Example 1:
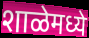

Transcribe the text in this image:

शाळेमध्ये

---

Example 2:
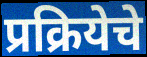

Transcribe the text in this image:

प्रक्रियेचे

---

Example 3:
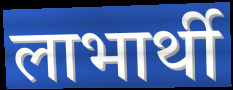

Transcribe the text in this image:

लाभार्थी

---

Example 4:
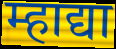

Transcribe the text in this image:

म्हाद्या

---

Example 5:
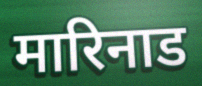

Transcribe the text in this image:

मारिनाड